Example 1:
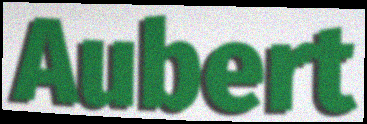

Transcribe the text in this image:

Aubert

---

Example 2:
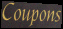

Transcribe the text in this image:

Coupons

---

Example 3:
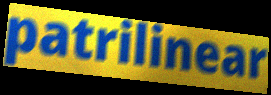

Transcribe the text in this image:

patrilinear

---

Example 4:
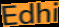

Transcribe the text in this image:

Edhi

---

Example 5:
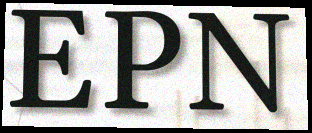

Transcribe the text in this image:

EPN